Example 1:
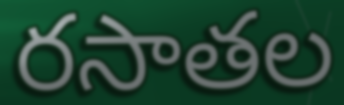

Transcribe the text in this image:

రసాతల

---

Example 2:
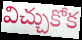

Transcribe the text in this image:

విచ్చుకోక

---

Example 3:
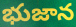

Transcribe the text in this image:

భుజాన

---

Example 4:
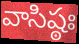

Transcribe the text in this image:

వాసిష్ఠః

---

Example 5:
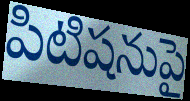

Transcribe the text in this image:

పిటిషనుపై